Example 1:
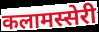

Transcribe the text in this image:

कलामस्सेरी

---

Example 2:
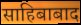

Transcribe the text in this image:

साहिबाबाद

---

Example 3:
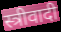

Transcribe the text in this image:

स्त्रीवादी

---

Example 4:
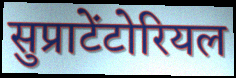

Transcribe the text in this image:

सुप्राटेंटोरियल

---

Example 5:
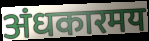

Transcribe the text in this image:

अंधकारमय